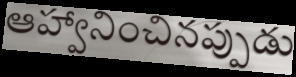
ఆహ్వానించినప్పుడు